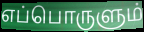
எப்பொருளும்